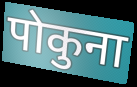
पोकुना